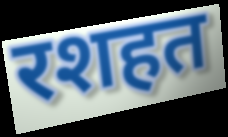
रशहत